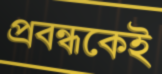
প্রবন্ধকেই